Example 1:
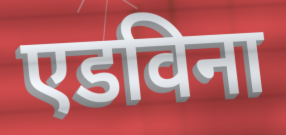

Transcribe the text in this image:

एडविना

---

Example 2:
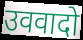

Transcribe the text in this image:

उववादो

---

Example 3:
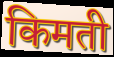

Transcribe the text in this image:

किमती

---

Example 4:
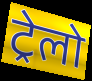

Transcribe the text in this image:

ट्रेलो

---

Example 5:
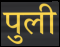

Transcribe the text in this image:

पुली